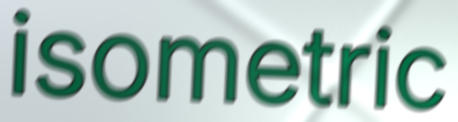
isometric